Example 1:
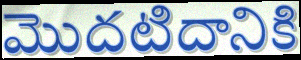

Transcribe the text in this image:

మొదటిదానికి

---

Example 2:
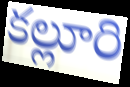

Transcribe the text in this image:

కల్లూరి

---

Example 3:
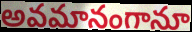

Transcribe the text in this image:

అవమానంగానూ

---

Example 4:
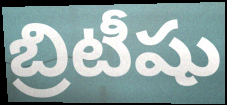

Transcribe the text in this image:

బ్రిటీషు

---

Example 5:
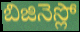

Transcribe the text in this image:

బిజినెస్లో